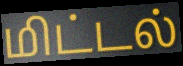
மிட்டல்